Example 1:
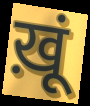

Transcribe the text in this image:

ख़ूं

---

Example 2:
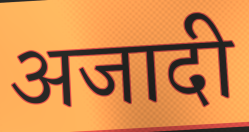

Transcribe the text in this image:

अजादी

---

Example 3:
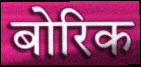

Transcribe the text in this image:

बोरिक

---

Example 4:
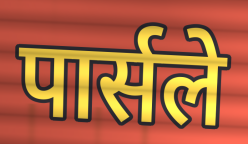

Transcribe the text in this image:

पार्सले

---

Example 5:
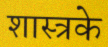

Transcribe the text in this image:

शास्त्रके